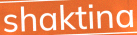
shaktina